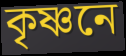
কৃষ্ণনে